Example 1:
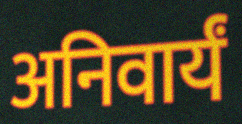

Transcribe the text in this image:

अनिवार्यं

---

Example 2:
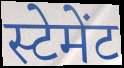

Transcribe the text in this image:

स्टेमेंट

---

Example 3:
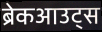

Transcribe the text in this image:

ब्रेकआउट्स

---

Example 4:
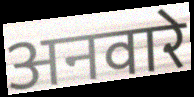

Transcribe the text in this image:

अनवारे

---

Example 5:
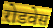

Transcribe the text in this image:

रोडवेस